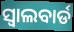
ସ୍ୱାଲବାର୍ଡ